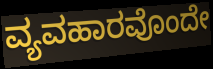
ವ್ಯವಹಾರವೊಂದೇ